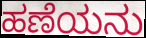
ಹಣೆಯನು